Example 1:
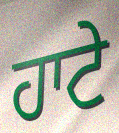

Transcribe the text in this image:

ਹਾਟੇ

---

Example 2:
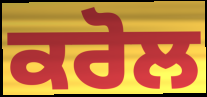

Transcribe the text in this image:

ਕਰੋਲ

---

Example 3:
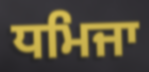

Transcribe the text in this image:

ਧਮਿਜਾ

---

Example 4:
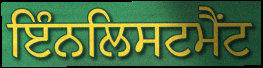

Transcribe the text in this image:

ਇੰਨਲਿਸਟਮੈਂਟ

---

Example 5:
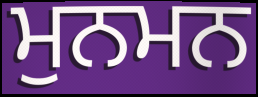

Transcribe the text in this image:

ਮੁਨਮਨ